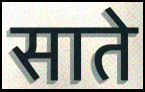
साते